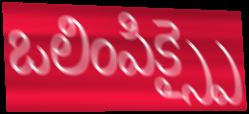
ఒలింపిక్స్పై